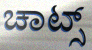
ಚಾಟ್ಸ್